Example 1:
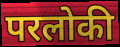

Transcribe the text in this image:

परलोकी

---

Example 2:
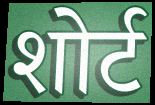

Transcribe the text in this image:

शोर्ट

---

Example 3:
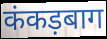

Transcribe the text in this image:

कंकड़बाग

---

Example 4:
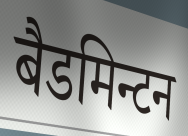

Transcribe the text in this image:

बैडमिन्टन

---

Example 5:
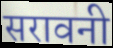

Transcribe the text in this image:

सरावनी